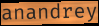
anandrey